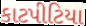
કાટપીટિયા